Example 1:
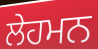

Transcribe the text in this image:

ਲੇਹਮਨ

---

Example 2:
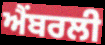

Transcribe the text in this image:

ਐਂਬਰਲੀ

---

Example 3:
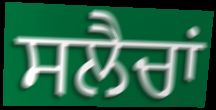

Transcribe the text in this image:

ਸਲੈਚਾਂ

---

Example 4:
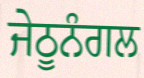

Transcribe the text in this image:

ਜੇਠੂਨੰਗਲ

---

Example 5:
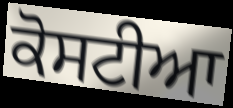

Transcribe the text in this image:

ਕੋਸਟੀਆ